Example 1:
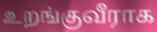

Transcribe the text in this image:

உறங்குவீராக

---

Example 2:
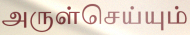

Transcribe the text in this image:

அருள்செய்யும்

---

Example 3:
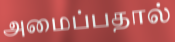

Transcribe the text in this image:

அமைப்பதால்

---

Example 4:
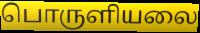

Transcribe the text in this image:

பொருளியலை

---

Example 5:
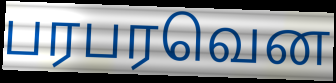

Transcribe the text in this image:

பரபரவென